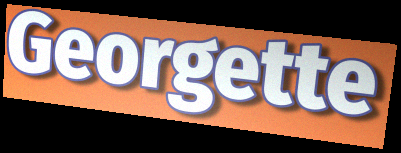
Georgette